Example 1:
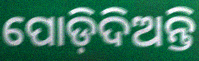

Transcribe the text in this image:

ପୋଡ଼ିଦିଅନ୍ତି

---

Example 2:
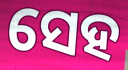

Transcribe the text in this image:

ସେହ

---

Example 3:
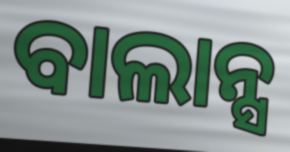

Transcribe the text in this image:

ବାଲାନ୍ସ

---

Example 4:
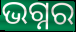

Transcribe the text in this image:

ଭଗ୍ନର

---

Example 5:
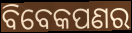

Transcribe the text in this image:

ବିବେକପଣର